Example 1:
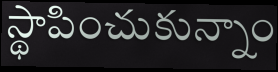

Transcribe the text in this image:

స్థాపించుకున్నాం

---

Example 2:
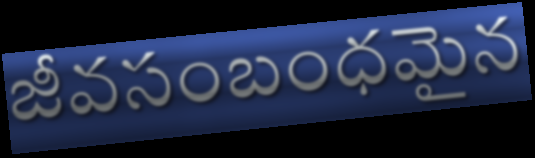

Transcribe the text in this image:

జీవసంబంధమైన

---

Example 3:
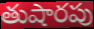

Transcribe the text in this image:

తుషారపు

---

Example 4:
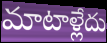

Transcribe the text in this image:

మాటాళ్లేదు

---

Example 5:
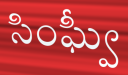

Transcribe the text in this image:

సింఘ్వీ